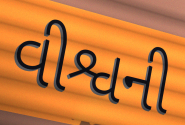
વીશ્વની